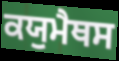
ਕਯੁਮੈਥਸ